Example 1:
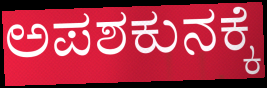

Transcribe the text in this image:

ಅಪಶಕುನಕ್ಕೆ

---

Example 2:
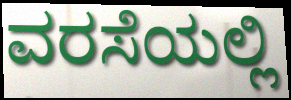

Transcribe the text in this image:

ವರಸೆಯಲ್ಲಿ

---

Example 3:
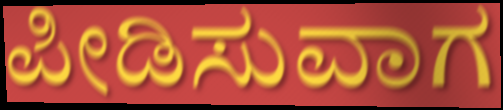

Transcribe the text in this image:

ಪೀಡಿಸುವಾಗ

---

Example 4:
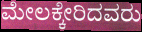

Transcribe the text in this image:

ಮೇಲಕ್ಕೇರಿದವರು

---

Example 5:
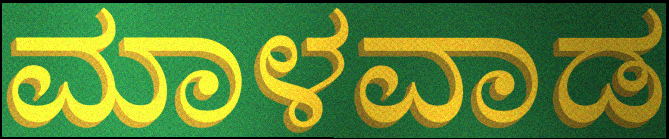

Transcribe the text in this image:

ಮಾಳವಾಡ